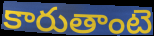
కారుతాంటె